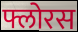
फ्लोरस